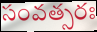
సంవత్సరః